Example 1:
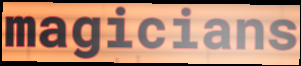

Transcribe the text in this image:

magicians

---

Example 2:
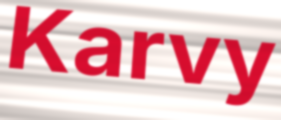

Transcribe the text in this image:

Karvy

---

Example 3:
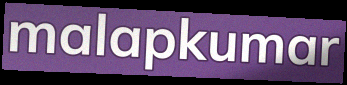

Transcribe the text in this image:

malapkumar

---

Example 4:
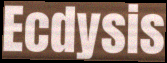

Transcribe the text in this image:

Ecdysis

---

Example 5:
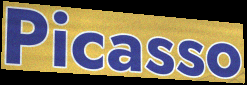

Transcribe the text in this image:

Picasso